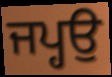
ਜਪ੍ਹਉ